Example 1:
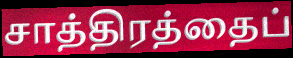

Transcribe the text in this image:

சாத்திரத்தைப்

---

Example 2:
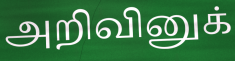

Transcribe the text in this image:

அறிவினுக்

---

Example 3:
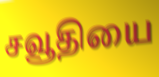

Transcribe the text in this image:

சவூதியை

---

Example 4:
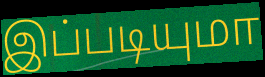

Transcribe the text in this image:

இப்படியுமா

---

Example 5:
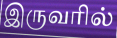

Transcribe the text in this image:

இருவரில்